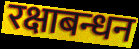
रक्षाबन्धन